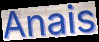
Anais